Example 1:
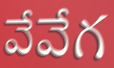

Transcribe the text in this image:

వేవేగ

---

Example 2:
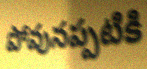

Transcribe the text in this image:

పోవునప్పటికి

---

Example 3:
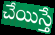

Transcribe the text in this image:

చేయిస్తే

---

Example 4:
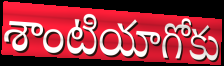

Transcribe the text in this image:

శాంటియాగోకు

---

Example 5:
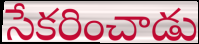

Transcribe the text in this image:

సేకరించాడు